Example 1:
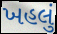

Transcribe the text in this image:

ખહલું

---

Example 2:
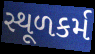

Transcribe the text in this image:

સ્થૂળકર્મ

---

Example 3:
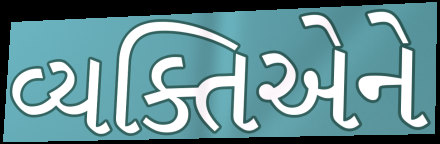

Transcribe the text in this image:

વ્યક્તિએને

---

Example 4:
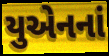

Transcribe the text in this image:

યુએનનાં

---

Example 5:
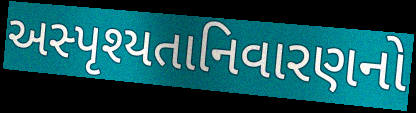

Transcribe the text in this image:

અસ્પૃશ્યતાનિવારણનો